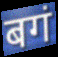
बगं